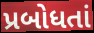
પ્રબોધતાં